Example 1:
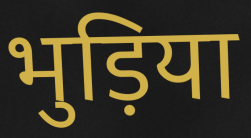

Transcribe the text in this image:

भुड़िया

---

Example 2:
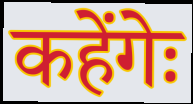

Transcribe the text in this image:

कहेंगेः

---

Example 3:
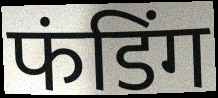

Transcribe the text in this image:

फंडिंग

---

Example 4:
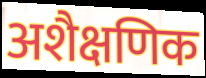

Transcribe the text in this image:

अशैक्षणिक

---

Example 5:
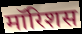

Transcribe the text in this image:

मॉरिशस